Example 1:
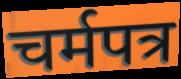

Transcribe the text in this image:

चर्मपत्र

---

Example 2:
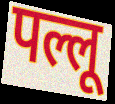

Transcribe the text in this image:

पल्लू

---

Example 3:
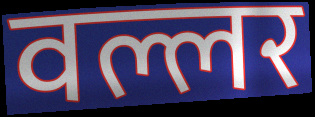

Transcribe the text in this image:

वल्लर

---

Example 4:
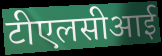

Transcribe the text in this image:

टीएलसीआई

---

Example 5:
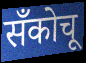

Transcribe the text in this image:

सँकोचू